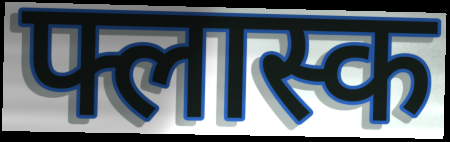
फ्लास्क